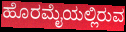
ಹೊರಮೈಯಲ್ಲಿರುವ